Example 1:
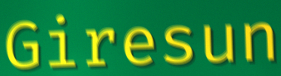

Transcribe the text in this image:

Giresun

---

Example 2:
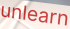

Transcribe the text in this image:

unlearn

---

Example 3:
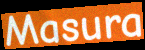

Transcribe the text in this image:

Masura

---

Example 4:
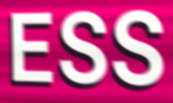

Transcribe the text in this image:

ESS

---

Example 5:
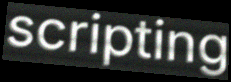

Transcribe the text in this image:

scripting